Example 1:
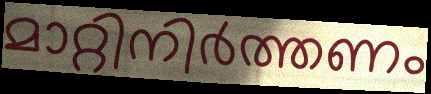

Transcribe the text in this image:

മാറ്റിനിർത്തണം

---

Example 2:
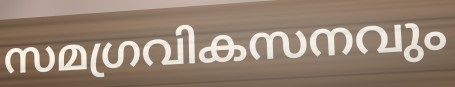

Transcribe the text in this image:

സമഗ്രവികസനവും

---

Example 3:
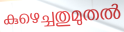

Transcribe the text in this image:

കുഴെച്ചതുമുതൽ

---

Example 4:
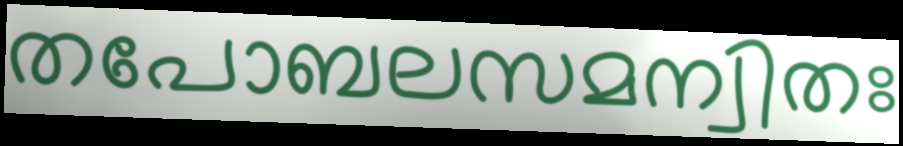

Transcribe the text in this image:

തപോബലസമന്വിതഃ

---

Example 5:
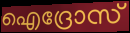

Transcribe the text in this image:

ഐദ്രോസ്